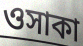
ওসাকা